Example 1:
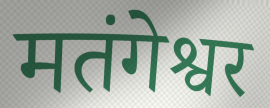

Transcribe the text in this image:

मतंगेश्वर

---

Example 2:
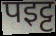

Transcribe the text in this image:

पइट्ट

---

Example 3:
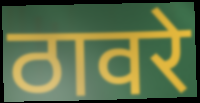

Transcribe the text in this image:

ठावरे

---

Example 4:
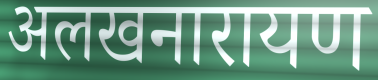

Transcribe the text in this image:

अलखनारायण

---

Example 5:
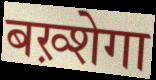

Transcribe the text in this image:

बख़्शेगा